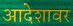
आदेशावर